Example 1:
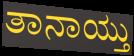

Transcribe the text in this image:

ತಾನಾಯ್ತು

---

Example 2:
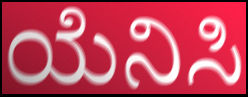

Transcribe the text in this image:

ಯೆನಿಸಿ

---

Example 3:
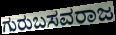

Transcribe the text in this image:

ಗುರುಬಸವರಾಜ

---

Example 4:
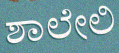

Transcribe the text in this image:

ಶಾಲೇಲಿ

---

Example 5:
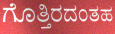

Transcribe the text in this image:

ಗೊತ್ತಿರದಂತಹ